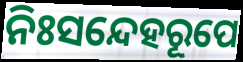
ନିଃସନ୍ଦେହରୂପେ